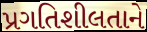
પ્રગતિશીલતાને